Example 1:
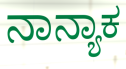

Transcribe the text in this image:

ನಾನ್ಯಾಕ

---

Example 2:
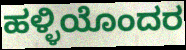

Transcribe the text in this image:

ಹಳ್ಳಿಯೊಂದರ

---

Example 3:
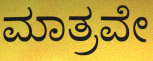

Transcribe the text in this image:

ಮಾತ್ರವೇ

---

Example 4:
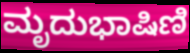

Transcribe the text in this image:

ಮೃದುಭಾಷಿಣಿ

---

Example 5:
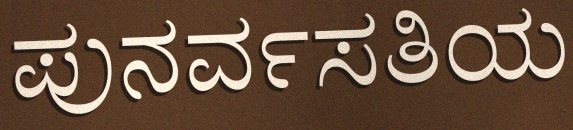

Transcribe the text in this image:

ಪುನರ್ವಸತಿಯ